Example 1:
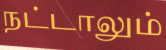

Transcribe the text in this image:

நட்டாலும்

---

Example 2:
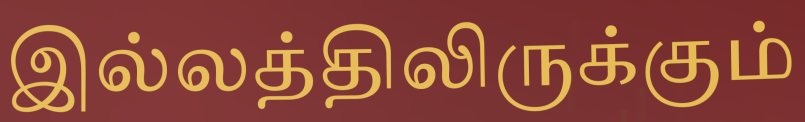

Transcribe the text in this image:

இல்லத்திலிருக்கும்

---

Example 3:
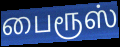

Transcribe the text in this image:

பைரூஸ்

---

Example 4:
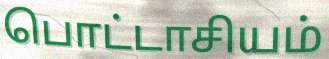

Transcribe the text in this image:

பொட்டாசியம்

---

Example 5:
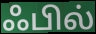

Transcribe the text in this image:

ஃபில்